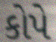
કોપે